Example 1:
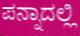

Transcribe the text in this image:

ಪನ್ನಾದಲ್ಲಿ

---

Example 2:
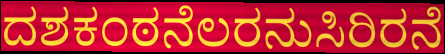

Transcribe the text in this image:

ದಶಕಂಠನೆಲರನುಸಿರಿರನೆ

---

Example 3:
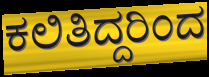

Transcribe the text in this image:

ಕಲಿತಿದ್ದರಿಂದ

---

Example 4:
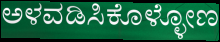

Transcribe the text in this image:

ಅಳವಡಿಸಿಕೊಳ್ಳೋಣ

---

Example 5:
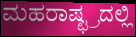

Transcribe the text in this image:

ಮಹರಾಷ್ಟ್ರದಲ್ಲಿ